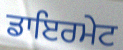
ਡਾਇਰਮੇਟ